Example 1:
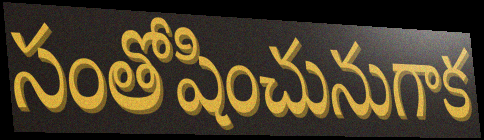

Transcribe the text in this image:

సంతోషించునుగాక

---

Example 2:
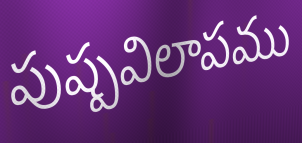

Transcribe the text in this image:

పుష్పవిలాపము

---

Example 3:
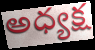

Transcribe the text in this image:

అధ్యక్ష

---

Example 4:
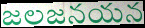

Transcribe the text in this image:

జలజనయన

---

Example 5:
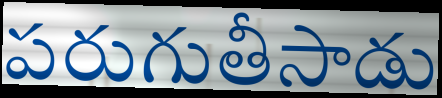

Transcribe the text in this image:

పరుగుతీసాడు